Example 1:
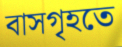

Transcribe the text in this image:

বাসগৃহতে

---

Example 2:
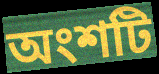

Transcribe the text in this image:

অংশটি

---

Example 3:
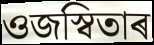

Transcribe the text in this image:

ওজস্বিতাৰ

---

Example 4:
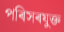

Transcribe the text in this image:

পৰিসৰযুক্ত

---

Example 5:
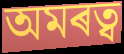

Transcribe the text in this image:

অমৰত্ব